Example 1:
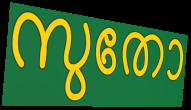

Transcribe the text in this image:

സുതോ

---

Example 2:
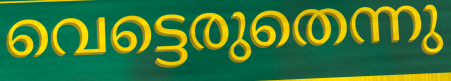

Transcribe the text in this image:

വെട്ടെരുതെന്നു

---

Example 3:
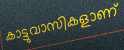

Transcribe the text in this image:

കാട്ടുവാസികളാണ്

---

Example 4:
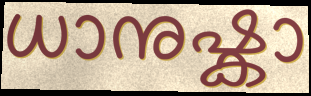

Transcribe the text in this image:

ധാനുഷ്കാ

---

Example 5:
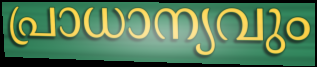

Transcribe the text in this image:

പ്രാധാന്യവും